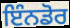
ਇੰਨਡੋਰ